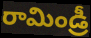
రామిండ్రీ